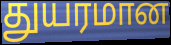
துயரமான